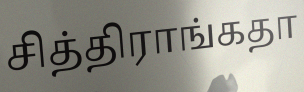
சித்திராங்கதா